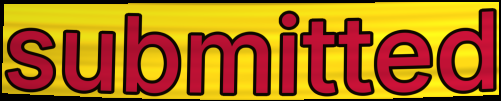
submitted